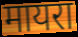
मायरा